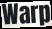
Warp